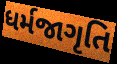
ધર્મજાગૃતિ